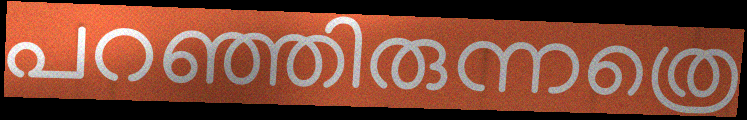
പറഞ്ഞിരുന്നത്രെ